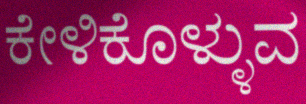
ಕೇಳಿಕೊಳ್ಳುವ